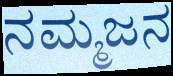
ನಮ್ಮಜನ